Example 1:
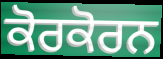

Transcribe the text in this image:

ਕੋਰਕੋਰਨ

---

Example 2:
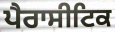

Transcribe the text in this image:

ਪੈਰਾਸੀਟਿਕ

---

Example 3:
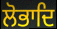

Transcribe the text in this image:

ਲੋਭਾਦਿ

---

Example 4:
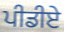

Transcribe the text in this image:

ਪੀਡੀਏ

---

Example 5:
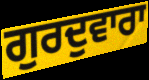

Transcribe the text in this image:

ਗੁਰਦੁਵਾਰਾ